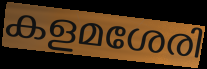
കളമശേരി